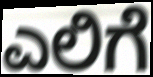
ಎಲಿಗೆ